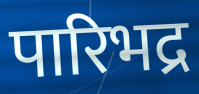
पारिभद्र